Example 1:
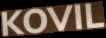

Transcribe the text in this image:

KOVIL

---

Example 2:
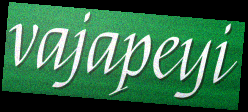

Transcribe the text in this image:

vajapeyi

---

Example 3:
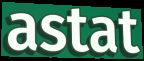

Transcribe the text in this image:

astat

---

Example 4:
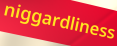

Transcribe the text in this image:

niggardliness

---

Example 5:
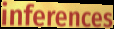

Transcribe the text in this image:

inferences